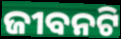
ଜୀବନଟି